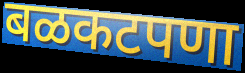
बळकटपणा